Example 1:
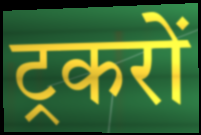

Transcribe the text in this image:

ट्रकरों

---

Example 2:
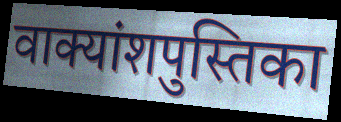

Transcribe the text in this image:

वाक्यांशपुस्तिका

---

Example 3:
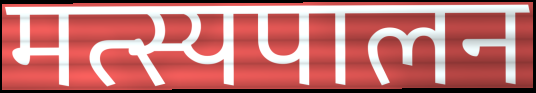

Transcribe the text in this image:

मत्स्यपालन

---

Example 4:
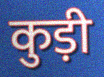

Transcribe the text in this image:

कुड़ी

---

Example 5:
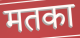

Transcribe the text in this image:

मतका